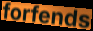
forfends